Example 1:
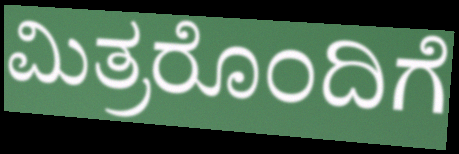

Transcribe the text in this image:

ಮಿತ್ರರೊಂದಿಗೆ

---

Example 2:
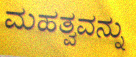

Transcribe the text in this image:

ಮಹತ್ವವನ್ನು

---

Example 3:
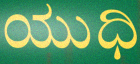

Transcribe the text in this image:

ಯುಧಿ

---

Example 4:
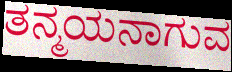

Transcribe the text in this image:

ತನ್ಮಯನಾಗುವ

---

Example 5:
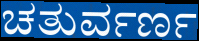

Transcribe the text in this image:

ಚತುರ್ವರ್ಣ